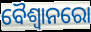
ବୈଶ୍ୱାନରୋ